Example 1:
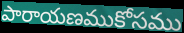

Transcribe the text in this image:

పారాయణముకోసము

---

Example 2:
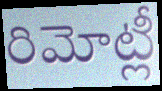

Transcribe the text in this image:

రిమోట్లీ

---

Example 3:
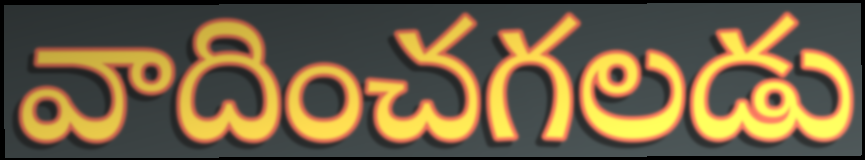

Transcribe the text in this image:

వాదించగలడు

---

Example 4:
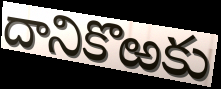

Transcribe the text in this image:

దానికొఱకు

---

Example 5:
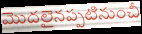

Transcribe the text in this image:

మొదలైనప్పటినుంచీ